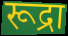
रूद्रा